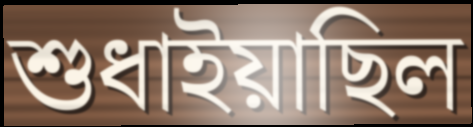
শুধাইয়াছিল